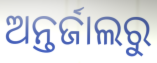
ଅନ୍ତର୍ଜାଲରୁ